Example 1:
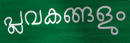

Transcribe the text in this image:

പ്ലവകങ്ങളും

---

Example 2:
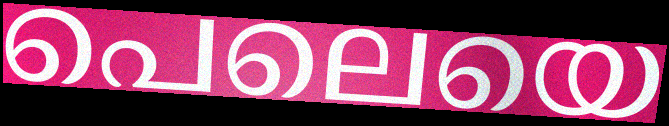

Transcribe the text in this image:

പെലെയെ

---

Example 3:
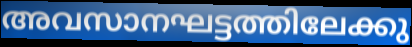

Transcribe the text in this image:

അവസാനഘട്ടത്തിലേക്കു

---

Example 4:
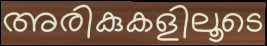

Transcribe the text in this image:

അരികുകളിലൂടെ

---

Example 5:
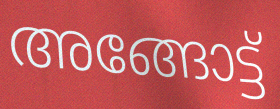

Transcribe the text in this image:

അങ്ങോട്ട്